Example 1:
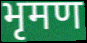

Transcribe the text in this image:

भृमण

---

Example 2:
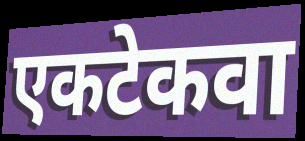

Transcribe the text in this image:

एकटेकवा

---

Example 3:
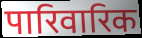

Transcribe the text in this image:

पारिवारिक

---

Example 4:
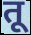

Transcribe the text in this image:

तू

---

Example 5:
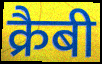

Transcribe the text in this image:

क्रैबी